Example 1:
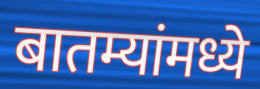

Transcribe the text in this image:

बातम्यांमध्ये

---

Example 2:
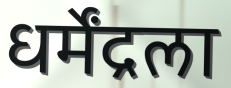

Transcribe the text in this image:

धर्मेंद्रला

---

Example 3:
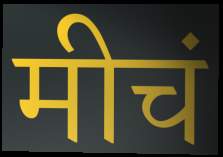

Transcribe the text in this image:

मीचं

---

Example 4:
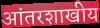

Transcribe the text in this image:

आंतरशाखीय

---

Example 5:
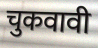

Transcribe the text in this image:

चुकवावी